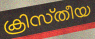
ക്രിസ്‌തീയ